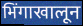
भिंगाखालून